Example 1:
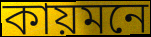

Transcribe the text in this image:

কায়মনে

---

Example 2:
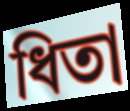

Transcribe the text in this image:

ধিতা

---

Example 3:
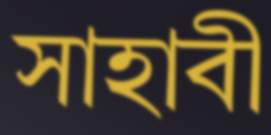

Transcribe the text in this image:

সাহাবী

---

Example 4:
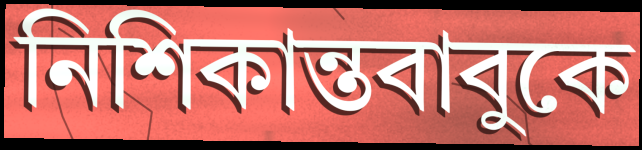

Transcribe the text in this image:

নিশিকান্তবাবুকে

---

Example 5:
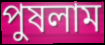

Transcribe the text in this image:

পুষলাম